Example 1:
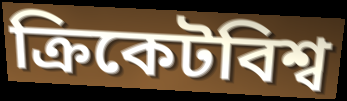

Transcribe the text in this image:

ক্রিকেটবিশ্ব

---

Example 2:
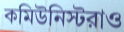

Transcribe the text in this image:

কমিউনিস্টরাও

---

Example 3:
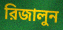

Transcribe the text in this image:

রিজালুন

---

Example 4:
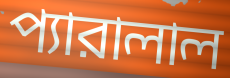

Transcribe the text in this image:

প্যারালাল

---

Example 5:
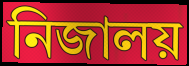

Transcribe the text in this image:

নিজালয়